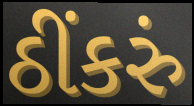
ઠીંકરું